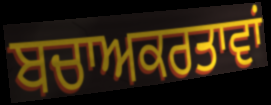
ਬਚਾਅਕਰਤਾਵਾਂ